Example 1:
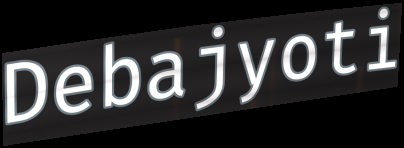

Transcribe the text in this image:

Debajyoti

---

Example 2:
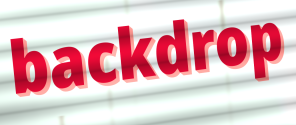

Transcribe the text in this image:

backdrop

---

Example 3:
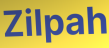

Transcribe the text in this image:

Zilpah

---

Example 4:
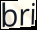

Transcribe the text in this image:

bri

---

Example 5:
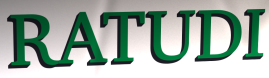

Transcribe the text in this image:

RATUDI